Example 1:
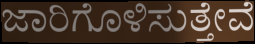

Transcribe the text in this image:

ಜಾರಿಗೊಳಿಸುತ್ತೇವೆ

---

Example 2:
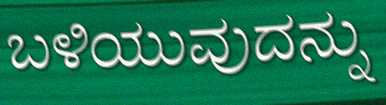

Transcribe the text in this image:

ಬಳಿಯುವುದನ್ನು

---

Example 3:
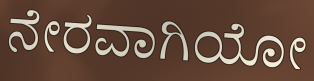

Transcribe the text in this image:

ನೇರವಾಗಿಯೋ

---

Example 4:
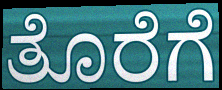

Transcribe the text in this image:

ತೊರೆಗೆ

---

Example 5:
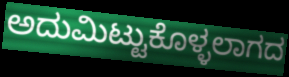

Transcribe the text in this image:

ಅದುಮಿಟ್ಟುಕೊಳ್ಳಲಾಗದ